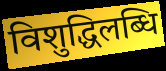
विशुद्धिलब्धि